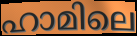
ഹാമിലെ